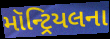
મૉન્ટ્રિયલના